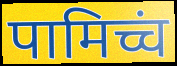
पामिच्चं